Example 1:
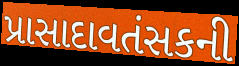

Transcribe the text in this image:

પ્રાસાદાવતંસકની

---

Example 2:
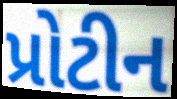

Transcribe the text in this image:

પ્રોટીન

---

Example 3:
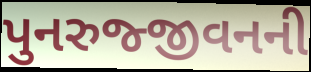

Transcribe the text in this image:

પુનરુજ્જીવનની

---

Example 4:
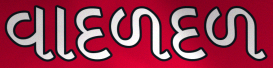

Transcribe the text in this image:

વાદળદળ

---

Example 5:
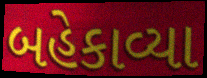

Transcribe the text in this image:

બહેકાવ્યા